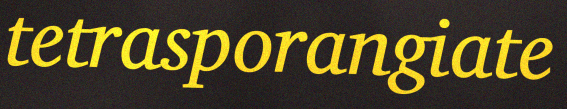
tetrasporangiate